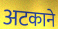
अटकाने